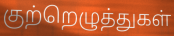
குற்றெழுத்துகள்